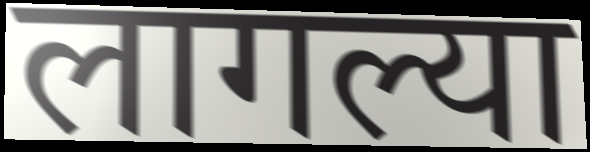
लागल्‍या